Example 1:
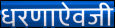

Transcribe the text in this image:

धरणाऐवजी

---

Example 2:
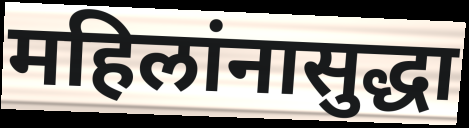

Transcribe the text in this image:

महिलांनासुद्धा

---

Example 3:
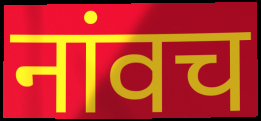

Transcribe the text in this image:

नांवच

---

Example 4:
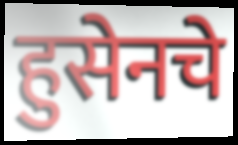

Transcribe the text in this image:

हुसेनचे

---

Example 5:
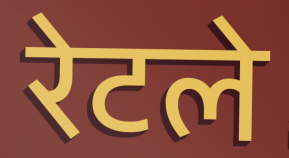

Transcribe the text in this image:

रेटले